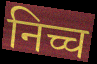
निच्च